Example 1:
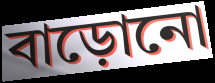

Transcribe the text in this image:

বাড়োনো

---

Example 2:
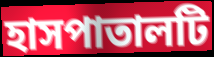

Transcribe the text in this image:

হাসপাতালটি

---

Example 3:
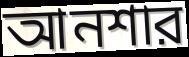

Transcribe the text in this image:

আনশার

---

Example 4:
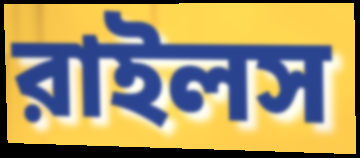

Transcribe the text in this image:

রাইলস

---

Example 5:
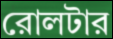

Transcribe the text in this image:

রোলটার